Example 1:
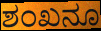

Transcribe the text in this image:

ಶಂಖನೂ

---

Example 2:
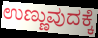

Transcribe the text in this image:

ಉಣ್ಣುವುದಕ್ಕೆ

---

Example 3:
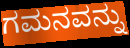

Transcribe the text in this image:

ಗಮನವನ್ನು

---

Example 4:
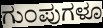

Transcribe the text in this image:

ಗುಂಪುಗಳೂ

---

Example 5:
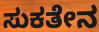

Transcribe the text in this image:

ಸುಕತೇನ